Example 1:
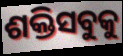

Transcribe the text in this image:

ଶକ୍ତିସବୁକୁ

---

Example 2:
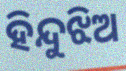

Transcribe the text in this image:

ହିନ୍ଦୁଝିଅ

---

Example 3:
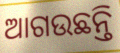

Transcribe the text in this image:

ଆଗଉଛନ୍ତି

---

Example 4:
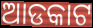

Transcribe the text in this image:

ଆଡକାଟ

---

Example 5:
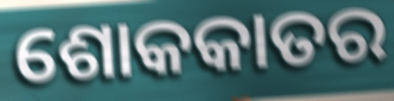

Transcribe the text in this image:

ଶୋକକାତର